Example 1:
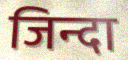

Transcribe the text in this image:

जिन्दा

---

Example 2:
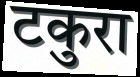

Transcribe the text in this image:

टकुरा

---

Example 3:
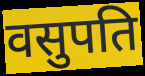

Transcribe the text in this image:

वसुपति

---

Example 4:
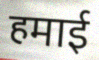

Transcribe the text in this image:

हमाई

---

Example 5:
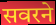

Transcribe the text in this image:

सवरने